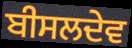
ਬੀਸਲਦੇਵ